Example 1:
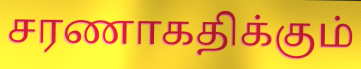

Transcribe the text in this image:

சரணாகதிக்கும்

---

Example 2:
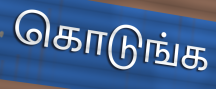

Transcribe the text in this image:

கொடுங்க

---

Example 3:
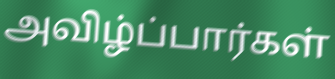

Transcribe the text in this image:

அவிழ்ப்பார்கள்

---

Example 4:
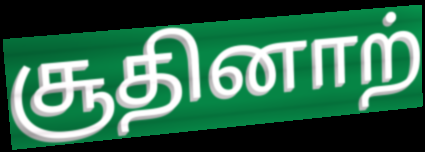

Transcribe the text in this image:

சூதினாற்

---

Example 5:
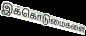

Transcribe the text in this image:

இக்கொடுமைகளை